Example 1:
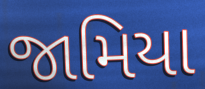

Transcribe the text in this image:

જામિયા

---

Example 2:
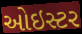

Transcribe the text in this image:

ઓઇસ્ટર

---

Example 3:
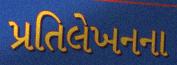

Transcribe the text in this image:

પ્રતિલેખનના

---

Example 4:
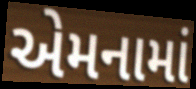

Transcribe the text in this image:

એમનામાં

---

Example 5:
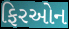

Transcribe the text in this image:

ફિરઓન